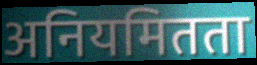
अनियमितता